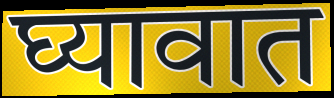
घ्यावात